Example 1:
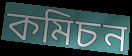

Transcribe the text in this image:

কমিচন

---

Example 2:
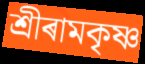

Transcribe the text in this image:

শ্ৰীৰামকৃষ্ণ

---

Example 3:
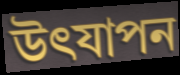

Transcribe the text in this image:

উৎযাপন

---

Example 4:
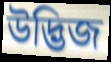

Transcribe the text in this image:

উদ্ভিজ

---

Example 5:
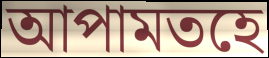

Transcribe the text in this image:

আপামতহে